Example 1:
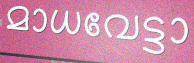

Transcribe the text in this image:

മാധവേട്ടാ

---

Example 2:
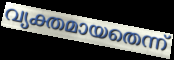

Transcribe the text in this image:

വ്യക്തമായതെന്ന്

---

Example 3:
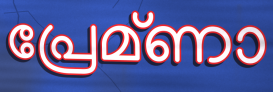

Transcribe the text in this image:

പ്രേമ്ണാ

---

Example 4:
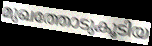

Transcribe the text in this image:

മുഖത്തോടുകൂടിയ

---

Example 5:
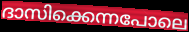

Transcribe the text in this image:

ദാസിക്കെന്നപോലെ